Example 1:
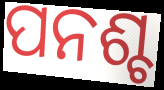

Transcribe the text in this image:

ପନଶ୍ଚ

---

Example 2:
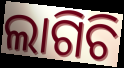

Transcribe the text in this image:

ଲାଗିଚି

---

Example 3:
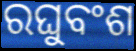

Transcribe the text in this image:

ରଘୁବଂଶ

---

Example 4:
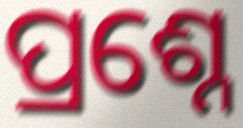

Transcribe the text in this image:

ପ୍ରଶ୍ନେ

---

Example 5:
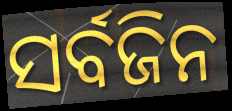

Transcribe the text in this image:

ସର୍ବଜିନ